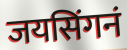
जयसिंगनं